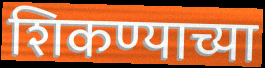
शिकण्याच्या